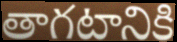
తాగటానికి